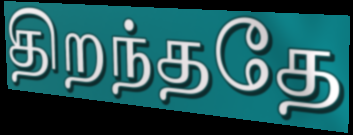
திறந்ததே